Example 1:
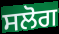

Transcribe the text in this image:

ਸਲੋਗ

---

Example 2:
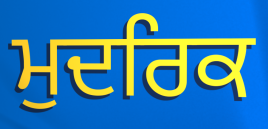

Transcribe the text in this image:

ਮੁਦਰਿਕ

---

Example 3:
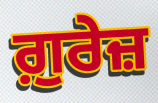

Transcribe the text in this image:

ਗ਼ੁਰੇਜ਼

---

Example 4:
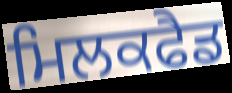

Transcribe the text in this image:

ਮਿਲਕਫੈਡ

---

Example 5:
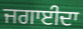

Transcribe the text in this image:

ਜਗਾਈਦਾ